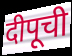
दीपूची